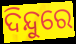
ଦିନ୍ଦୁରେ